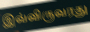
இவ்விருவரது